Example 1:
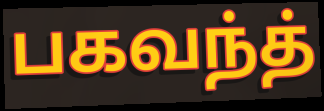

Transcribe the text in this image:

பகவந்த்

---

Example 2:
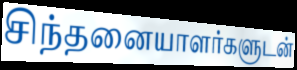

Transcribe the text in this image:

சிந்தனையாளர்களுடன்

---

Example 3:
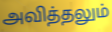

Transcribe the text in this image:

அவித்தலும்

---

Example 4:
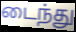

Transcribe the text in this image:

டைந்து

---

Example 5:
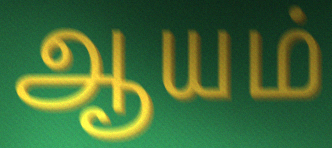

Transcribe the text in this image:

ஆயம்